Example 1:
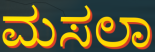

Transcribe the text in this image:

ಮಸಲಾ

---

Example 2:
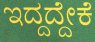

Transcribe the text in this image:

ಇದ್ದದ್ದೇಕೆ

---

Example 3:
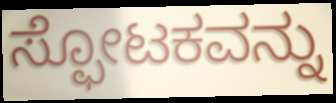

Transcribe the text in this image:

ಸ್ಫೋಟಕವನ್ನು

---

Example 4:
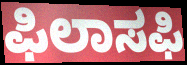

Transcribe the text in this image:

ಫಿಲಾಸಫಿ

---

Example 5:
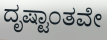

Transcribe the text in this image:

ದೃಷ್ಟಾಂತವೇ